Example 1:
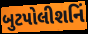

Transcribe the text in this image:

બુટપોલીશનિં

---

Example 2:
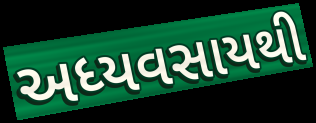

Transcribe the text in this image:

અધ્યવસાયથી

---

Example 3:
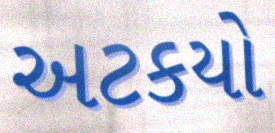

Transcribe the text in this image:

અટકયો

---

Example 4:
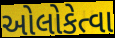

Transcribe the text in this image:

ઓલોકેત્વા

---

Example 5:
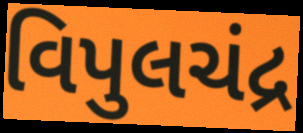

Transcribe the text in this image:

વિપુલચંદ્ર